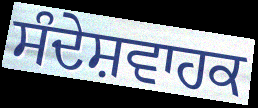
ਸੰਦੇਸ਼ਵਾਹਕ